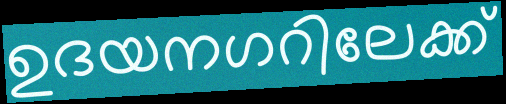
ഉദയനഗറിലേക്ക്